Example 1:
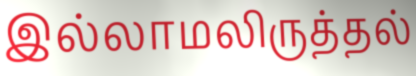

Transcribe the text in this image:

இல்லாமலிருத்தல்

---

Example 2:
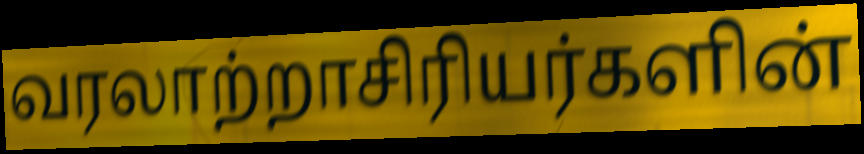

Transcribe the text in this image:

வரலாற்றாசிரியர்களின்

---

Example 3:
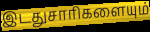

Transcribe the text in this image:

இடதுசாரிகளையும்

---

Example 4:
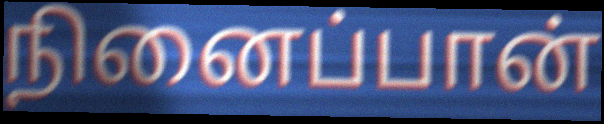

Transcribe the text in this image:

நினைப்பான்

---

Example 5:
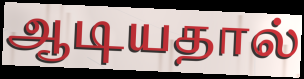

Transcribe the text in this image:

ஆடியதால்